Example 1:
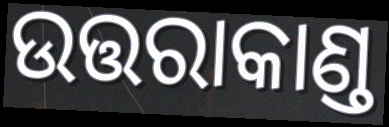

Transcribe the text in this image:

ଉତ୍ତରାକାଣ୍ଡ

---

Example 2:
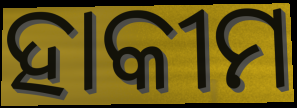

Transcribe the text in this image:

ହାକୀମ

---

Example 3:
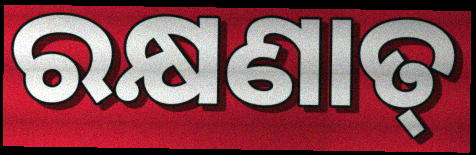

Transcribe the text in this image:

ରକ୍ଷଣାତ୍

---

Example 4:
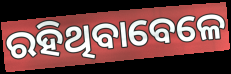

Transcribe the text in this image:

ରହିଥିବାବେଳେ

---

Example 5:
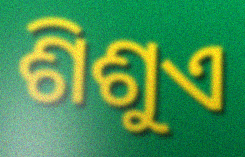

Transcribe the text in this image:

ଶିଶୁଏ